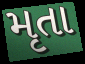
મૃતા